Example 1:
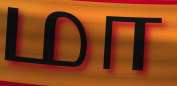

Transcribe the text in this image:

மா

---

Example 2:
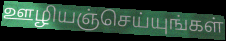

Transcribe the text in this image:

ஊழியஞ்செய்யுங்கள்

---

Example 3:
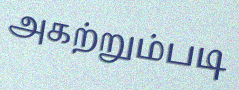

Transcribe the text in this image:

அகற்றும்படி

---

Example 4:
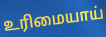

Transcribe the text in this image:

உரிமையாய்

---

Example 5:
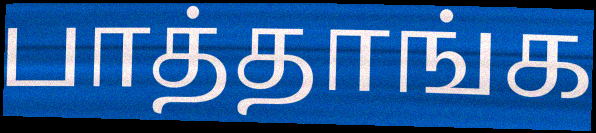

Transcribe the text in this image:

பாத்தாங்க